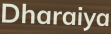
Dharaiya